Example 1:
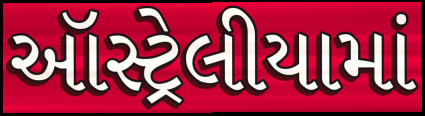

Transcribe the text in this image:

ઑસ્ટ્રેલીયામાં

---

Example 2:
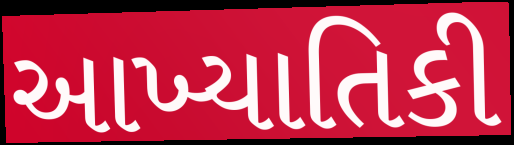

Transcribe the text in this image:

આખ્યાતિકી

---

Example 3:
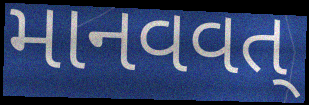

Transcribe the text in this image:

માનવવત્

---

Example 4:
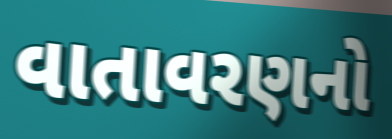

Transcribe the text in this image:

વાતાવરણનો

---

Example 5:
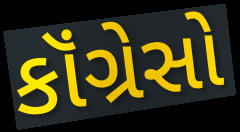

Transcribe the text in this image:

કૉંગ્રેસો